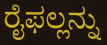
ರೈಫಲ್ಲನ್ನು